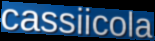
cassiicola